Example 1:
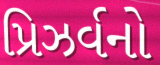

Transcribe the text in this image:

પ્રિઝર્વનો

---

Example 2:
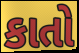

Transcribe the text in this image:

કાતો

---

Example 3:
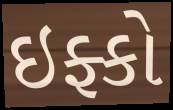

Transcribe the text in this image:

ઇફ્કો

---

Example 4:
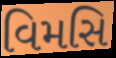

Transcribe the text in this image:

વિમસિ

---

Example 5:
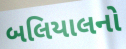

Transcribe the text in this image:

બલિયાલનો